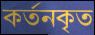
কর্তনকৃত